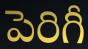
పెరిగీ